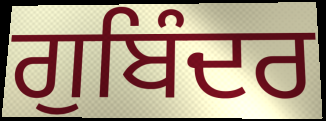
ਗੁਬਿੰਦਰ